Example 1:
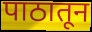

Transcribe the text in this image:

पाठातून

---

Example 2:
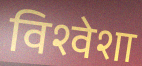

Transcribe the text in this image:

विश्वेशा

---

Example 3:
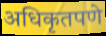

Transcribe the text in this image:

अधिकृतपणे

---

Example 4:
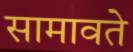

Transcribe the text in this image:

सामावते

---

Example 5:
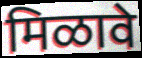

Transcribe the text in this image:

मिळावे